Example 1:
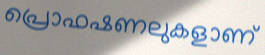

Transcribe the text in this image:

പ്രൊഫഷണലുകളാണ്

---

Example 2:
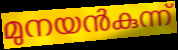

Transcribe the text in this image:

മുനയൻകുന്ന്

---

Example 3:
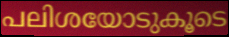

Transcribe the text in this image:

പലിശയോടുകൂടെ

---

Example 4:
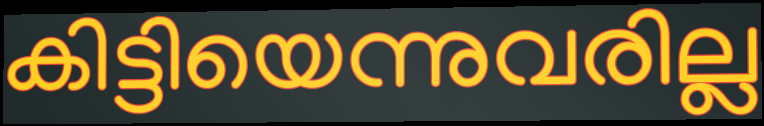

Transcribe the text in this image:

കിട്ടിയെന്നുവരില്ല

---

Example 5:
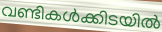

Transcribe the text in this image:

വണ്ടികൾക്കിടയിൽ